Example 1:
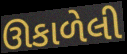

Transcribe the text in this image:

ઊકાળેલી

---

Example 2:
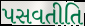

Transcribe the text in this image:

પસવતીતિ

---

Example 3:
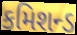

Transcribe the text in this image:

કમિશન્ડ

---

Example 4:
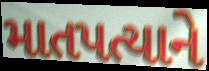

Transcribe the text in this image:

માતપત્યાને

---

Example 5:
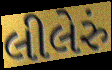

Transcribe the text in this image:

લીલેરું